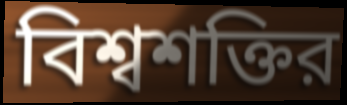
বিশ্বশক্তির